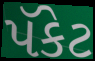
પૅકેટ